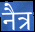
नैत्र